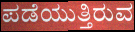
ಪಡೆಯುತ್ತಿರುವ